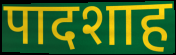
पादशाह